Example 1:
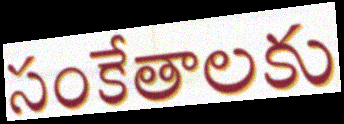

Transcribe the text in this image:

సంకేతాలకు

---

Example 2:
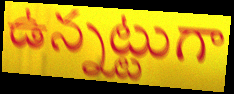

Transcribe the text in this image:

ఉన్నట్టుగా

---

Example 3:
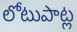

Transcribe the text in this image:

లోటుపాట్ల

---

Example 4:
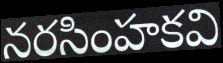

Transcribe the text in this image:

నరసింహకవి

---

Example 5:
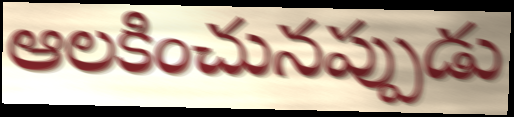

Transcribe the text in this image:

ఆలకించునప్పుడు